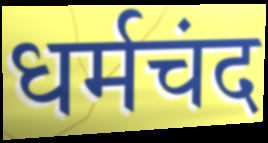
धर्मचंद